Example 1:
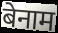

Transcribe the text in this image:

बेनाम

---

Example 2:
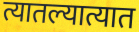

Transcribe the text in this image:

त्यातल्यात्यात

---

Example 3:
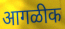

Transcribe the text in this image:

आगळीक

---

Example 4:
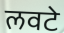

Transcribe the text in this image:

लवटे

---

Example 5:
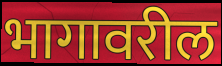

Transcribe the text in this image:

भागावरील